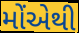
મોંએથી